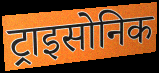
ट्राइसोनिक